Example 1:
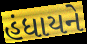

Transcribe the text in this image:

હંધાયને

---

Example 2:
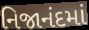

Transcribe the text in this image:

નિજાનંદમાં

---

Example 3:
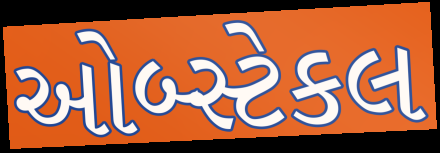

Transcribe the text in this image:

ઓબ્સ્ટેકલ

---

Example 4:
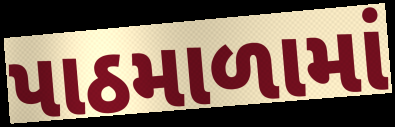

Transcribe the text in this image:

પાઠમાળામાં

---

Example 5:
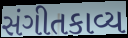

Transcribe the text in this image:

સંગીતકાવ્ય